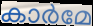
കാർമേ